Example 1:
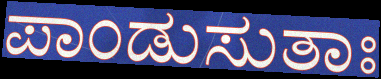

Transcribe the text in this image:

ಪಾಂಡುಸುತಾಃ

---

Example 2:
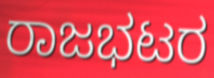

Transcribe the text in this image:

ರಾಜಭಟರ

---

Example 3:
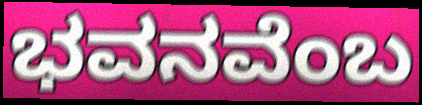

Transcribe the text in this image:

ಭವನವೆಂಬ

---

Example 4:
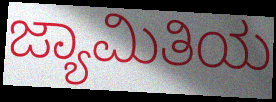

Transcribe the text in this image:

ಜ್ಯಾಮಿತಿಯ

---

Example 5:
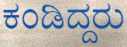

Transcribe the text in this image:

ಕಂಡಿದ್ದರು